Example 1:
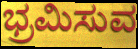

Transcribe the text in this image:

ಭ್ರಮಿಸುವ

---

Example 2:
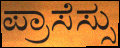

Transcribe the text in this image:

ಪ್ರಾಸೆಸ್ಸು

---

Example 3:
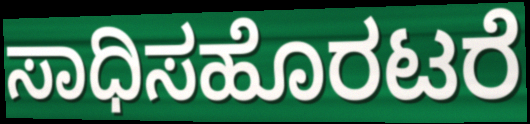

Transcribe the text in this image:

ಸಾಧಿಸಹೊರಟರೆ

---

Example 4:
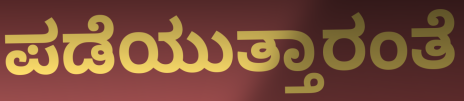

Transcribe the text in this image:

ಪಡೆಯುತ್ತಾರಂತೆ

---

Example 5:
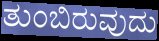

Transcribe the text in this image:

ತುಂಬಿರುವುದು